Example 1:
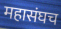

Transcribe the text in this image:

महासंघच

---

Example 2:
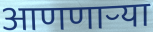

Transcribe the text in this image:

आणणाऱ्या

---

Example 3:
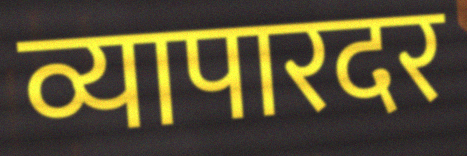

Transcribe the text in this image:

व्यापारदर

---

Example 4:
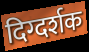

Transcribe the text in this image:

दिग्‍दर्शक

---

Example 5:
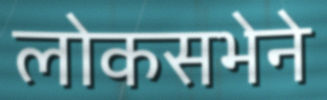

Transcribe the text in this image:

लोकसभेने